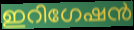
ഇറിഗേഷൻ